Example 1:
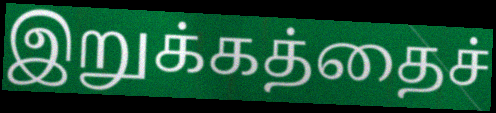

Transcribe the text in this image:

இறுக்கத்தைச்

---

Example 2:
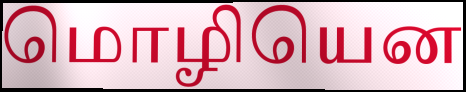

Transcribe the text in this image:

மொழியென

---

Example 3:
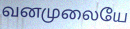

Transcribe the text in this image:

வனமுலையே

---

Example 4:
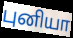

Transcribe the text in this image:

புனியா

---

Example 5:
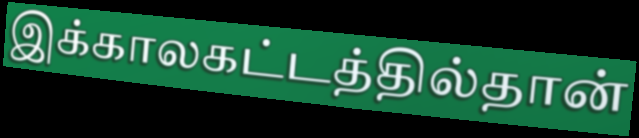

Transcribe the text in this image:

இக்காலகட்டத்தில்தான்